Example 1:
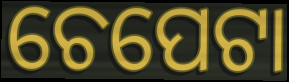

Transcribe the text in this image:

ଚେପେଟା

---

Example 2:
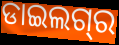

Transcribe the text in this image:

ଡାଇଲଗ୍‌ର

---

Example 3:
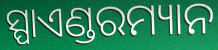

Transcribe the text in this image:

ସ୍ପାଏଣ୍ଡରମ୍ୟାନ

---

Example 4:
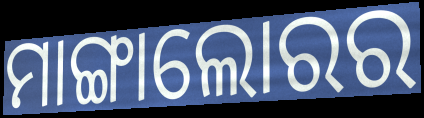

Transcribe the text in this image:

ମାଙ୍ଗାଲୋରର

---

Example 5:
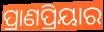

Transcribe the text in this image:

ପ୍ରାଣପ୍ରିୟାର